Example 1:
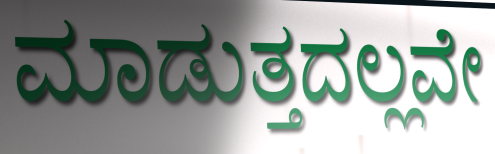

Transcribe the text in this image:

ಮಾಡುತ್ತದಲ್ಲವೇ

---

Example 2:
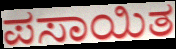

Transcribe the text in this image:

ಪಸಾಯಿತ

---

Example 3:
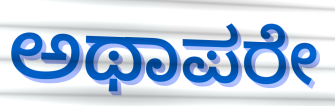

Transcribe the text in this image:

ಅಥಾಪರೇ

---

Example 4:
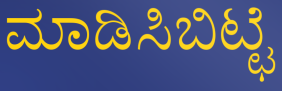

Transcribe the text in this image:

ಮಾಡಿಸಿಬಿಟ್ಟೆ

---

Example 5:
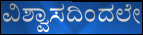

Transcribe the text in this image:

ವಿಶ್ವಾಸದಿಂದಲೇ